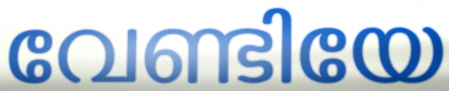
വേണ്ടിയേ